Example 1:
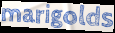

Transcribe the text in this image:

marigolds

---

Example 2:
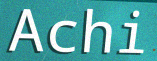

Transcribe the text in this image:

Achi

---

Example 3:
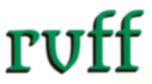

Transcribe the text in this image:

ruff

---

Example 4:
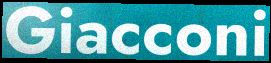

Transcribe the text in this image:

Giacconi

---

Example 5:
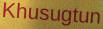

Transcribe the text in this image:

Khusugtun